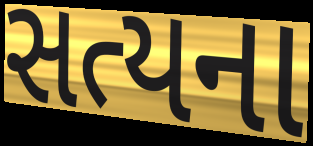
સત્યના